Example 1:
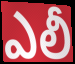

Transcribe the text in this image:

ఎలీ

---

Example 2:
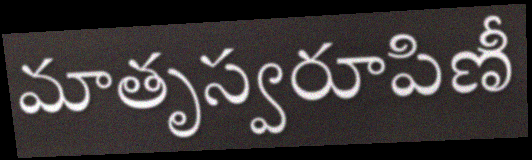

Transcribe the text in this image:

మాతృస్వరూపిణీ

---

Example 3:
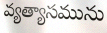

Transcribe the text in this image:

వ్యత్యాసమును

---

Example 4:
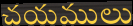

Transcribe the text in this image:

చయములు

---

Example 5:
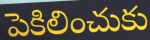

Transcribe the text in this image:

పెకిలించుకు